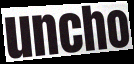
uncho